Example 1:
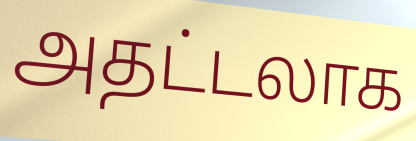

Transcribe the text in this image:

அதட்டலாக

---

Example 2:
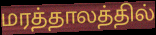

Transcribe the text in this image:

மரத்தாலத்தில்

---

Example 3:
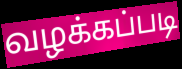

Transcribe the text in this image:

வழக்கப்படி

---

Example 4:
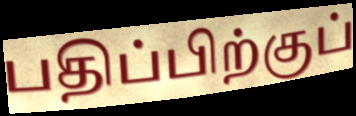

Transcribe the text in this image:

பதிப்பிற்குப்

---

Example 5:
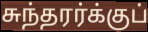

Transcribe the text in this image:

சுந்தரர்க்குப்